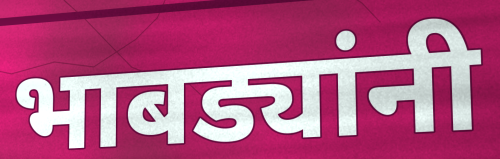
भाबड्यांनी